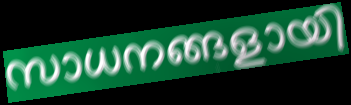
സാധനങ്ങളായി